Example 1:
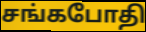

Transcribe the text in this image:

சங்கபோதி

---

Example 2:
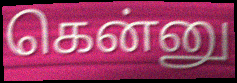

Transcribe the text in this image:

கென்னு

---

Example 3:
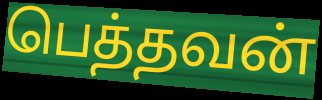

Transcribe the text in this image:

பெத்தவன்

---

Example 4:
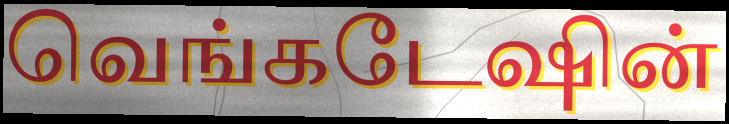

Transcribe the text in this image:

வெங்கடேஷின்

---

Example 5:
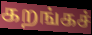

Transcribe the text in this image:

கறங்கச்